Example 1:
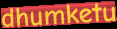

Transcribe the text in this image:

dhumketu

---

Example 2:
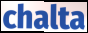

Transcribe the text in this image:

chalta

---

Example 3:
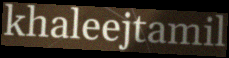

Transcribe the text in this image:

khaleejtamil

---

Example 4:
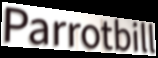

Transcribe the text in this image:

Parrotbill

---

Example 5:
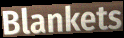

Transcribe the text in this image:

Blankets